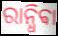
ରାନ୍ଧିଵା